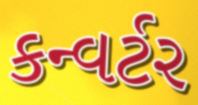
કન્વર્ટર